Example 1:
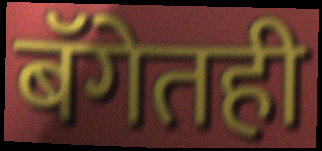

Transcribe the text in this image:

बॅगेतही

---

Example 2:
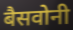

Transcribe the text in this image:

बैसवोनी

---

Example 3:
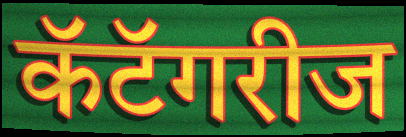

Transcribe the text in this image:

कॅटॅगरीज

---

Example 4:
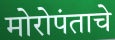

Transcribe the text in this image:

मोरोपंताचे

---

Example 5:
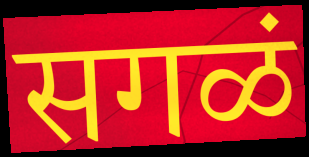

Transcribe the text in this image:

सगळं